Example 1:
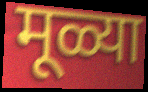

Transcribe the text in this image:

मूळ्या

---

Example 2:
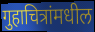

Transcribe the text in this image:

गुहाचित्रांमधील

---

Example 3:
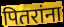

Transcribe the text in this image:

पितरांना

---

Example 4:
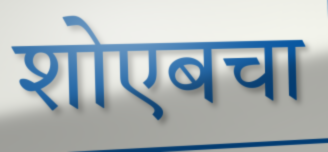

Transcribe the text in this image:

शोएबचा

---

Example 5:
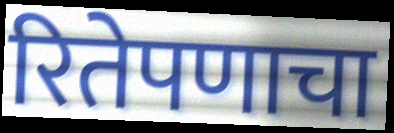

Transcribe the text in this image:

रितेपणाचा